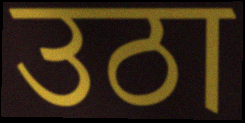
उठा